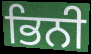
ਭਿਨੀ